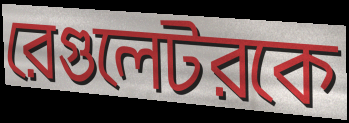
রেগুলেটরকে